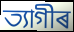
ত্যাগীৰ